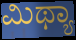
ಮಿಥ್ಯಾ